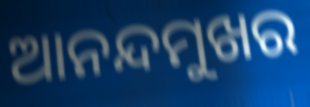
ଆନନ୍ଦମୁଖର